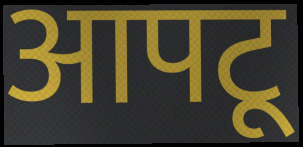
आपटू